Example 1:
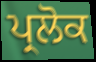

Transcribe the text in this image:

ਪ੍ਰਲੋਕ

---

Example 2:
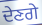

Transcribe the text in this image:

ਦੇਣਗੇ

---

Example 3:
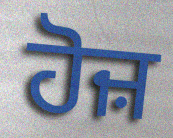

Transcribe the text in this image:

ਹੋਜ਼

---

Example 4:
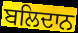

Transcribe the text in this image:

ਬਲਿਦਾਨ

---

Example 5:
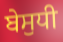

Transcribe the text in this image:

ਬੇਸੁਧੀ